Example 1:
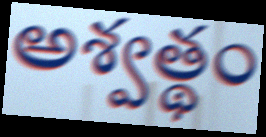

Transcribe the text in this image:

అశ్వత్థం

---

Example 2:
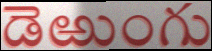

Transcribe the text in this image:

డెఱుంగు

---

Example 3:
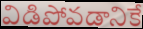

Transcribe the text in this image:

విడిపోవడానికే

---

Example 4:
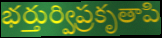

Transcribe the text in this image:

భర్తుర్విప్రకృతాపి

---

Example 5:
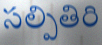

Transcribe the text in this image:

సల్పితిరి